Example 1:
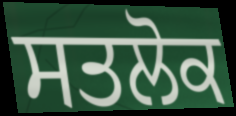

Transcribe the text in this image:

ਸਤਲੋਕ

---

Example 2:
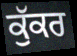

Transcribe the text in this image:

ਕੁੱਕਰ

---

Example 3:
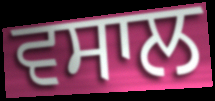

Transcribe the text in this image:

ਵਸਾਲ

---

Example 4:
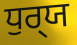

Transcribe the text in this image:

ਧੁਰ੍‍ਯ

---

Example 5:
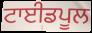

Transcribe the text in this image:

ਟਾਈਡਪੂਲ